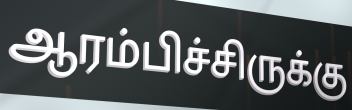
ஆரம்பிச்சிருக்கு